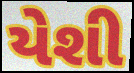
યેશી